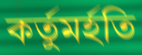
কর্তুমর্হতি